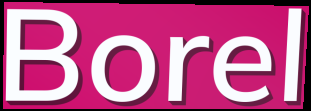
Borel